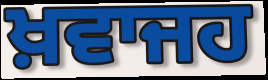
ਖ਼ਵਾਜਹ